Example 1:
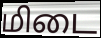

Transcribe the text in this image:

மிடை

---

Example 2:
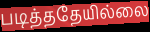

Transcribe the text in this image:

படித்ததேயில்லை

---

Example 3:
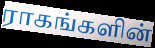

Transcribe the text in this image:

ராகங்களின்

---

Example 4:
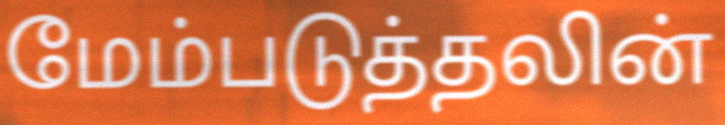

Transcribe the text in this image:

மேம்படுத்தலின்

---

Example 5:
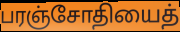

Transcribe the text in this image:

பரஞ்சோதியைத்